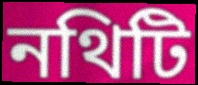
নথিটি